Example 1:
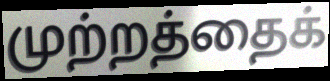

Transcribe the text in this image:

முற்றத்தைக்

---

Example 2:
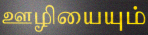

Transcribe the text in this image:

ஊழியையும்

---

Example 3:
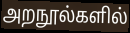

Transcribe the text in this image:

அறநூல்களில்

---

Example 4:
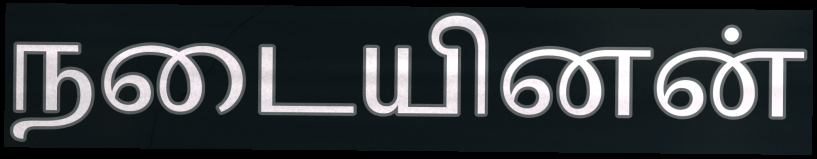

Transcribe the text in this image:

நடையினன்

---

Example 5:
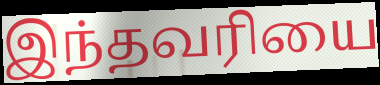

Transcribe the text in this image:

இந்தவரியை